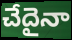
చేదైనా